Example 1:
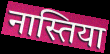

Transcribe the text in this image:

नास्तिया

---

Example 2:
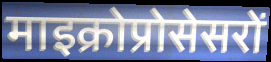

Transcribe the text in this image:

माइक्रोप्रोसेसरों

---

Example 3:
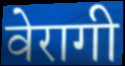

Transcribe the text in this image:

वेरागी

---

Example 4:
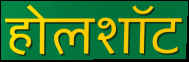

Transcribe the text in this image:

होलशॉट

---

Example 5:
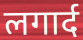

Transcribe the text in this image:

लगार्द